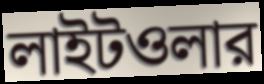
লাইটওলার